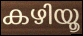
കഴിയൂ